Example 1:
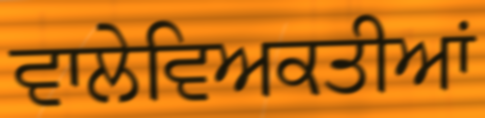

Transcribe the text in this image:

ਵਾਲੇਵਿਅਕਤੀਆਂ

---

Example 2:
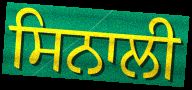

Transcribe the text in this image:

ਸਿਨਾਲੀ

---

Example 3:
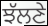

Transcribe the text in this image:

ਝੱਲਣੇ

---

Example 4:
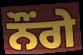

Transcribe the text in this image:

ਨੌਂਗੇ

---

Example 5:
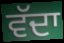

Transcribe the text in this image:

ਵੱਦਾ